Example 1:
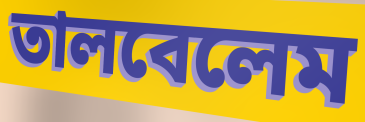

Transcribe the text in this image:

তালবেলেম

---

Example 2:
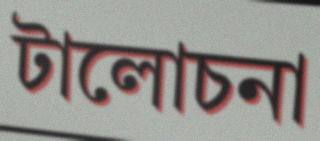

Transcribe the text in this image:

টালোচনা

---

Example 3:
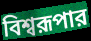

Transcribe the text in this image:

বিশ্বরূপার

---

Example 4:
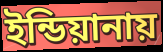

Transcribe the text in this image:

ইন্ডিয়ানায়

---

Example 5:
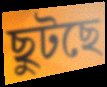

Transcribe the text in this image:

ছুটছে